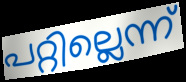
പറ്റില്ലെന്ന്